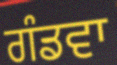
ਗੰਡਵਾ